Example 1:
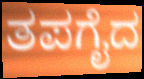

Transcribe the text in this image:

ತಪಗೈದ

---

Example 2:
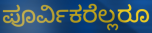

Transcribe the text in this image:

ಪೂರ್ವಿಕರೆಲ್ಲರೂ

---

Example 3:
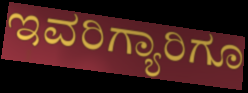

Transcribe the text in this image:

ಇವರಿಗ್ಯಾರಿಗೂ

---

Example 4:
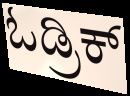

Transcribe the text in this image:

ಓಡ್ರಿಕ್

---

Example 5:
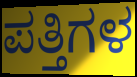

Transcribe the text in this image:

ಪತ್ತಿಗಳ